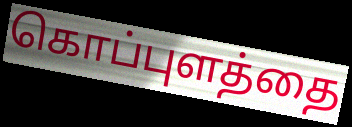
கொப்புளத்தை